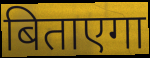
बिताएगा